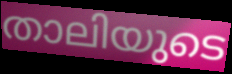
താലിയുടെ